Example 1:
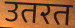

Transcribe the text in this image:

उतरत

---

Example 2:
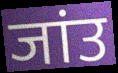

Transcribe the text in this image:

जांउ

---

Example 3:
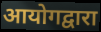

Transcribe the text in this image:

आयोगद्वारा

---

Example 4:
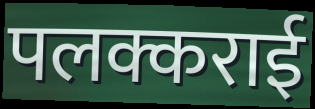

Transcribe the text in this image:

पलक्कराई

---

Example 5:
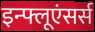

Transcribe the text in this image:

इन्फ्लूएंसर्स